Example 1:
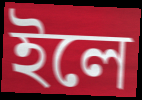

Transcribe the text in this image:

ইলে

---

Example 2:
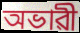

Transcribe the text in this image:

অভাৱী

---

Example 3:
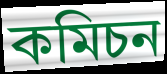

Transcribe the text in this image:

কমিচন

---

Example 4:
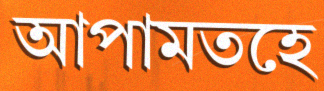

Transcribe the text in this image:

আপামতহে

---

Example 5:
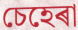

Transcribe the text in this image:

চেহেৰা